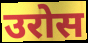
उरोस